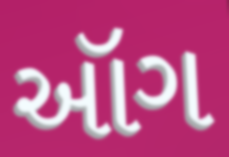
ઑગ